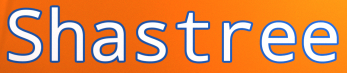
Shastree